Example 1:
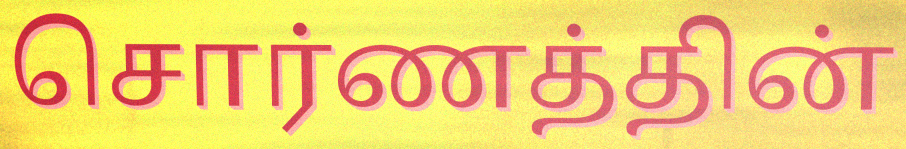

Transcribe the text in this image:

சொர்ணத்தின்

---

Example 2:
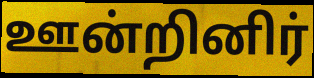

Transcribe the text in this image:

ஊன்றினிர்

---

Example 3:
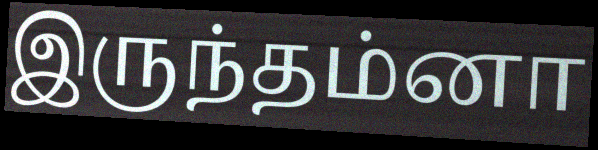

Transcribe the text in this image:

இருந்தம்னா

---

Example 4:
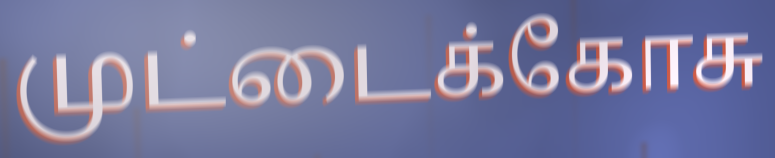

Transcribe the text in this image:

முட்டைக்கோசு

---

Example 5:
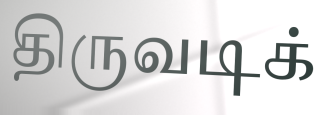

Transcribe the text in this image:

திருவடிக்